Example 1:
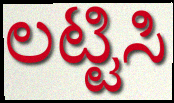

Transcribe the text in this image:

ಲಟ್ಟಿಸಿ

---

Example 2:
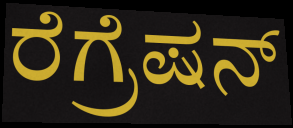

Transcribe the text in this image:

ರೆಗ್ರೆಷನ್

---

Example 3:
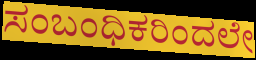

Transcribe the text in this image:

ಸಂಬಂಧಿಕರಿಂದಲೇ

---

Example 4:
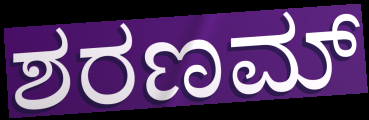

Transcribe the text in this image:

ಶರಣಮ್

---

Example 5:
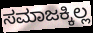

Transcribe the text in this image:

ಸಮಾಜಕ್ಕಿಲ್ಲ